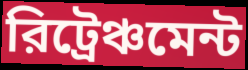
রিট্রেঞ্চমেন্ট